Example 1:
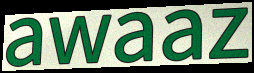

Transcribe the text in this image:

awaaz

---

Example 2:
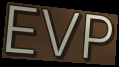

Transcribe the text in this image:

EVP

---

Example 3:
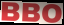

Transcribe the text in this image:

BBO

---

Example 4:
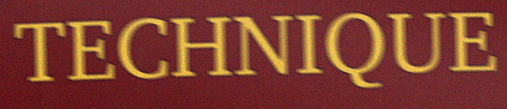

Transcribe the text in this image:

TECHNIQUE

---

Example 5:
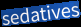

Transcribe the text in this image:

sedatives